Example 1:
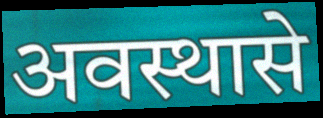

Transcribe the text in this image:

अवस्थासे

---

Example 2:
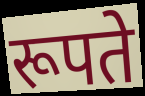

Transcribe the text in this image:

रूपते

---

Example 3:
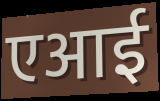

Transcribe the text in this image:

एआई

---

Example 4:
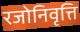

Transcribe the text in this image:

रजोनिवृत्ति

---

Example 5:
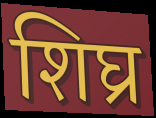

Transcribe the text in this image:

शिघ्र